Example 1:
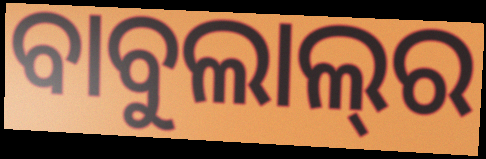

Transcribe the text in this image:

ବାବୁଲାଲ୍‍ର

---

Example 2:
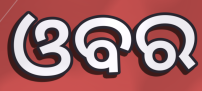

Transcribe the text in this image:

ଓବର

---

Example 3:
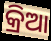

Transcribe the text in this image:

କ୍ରିଆ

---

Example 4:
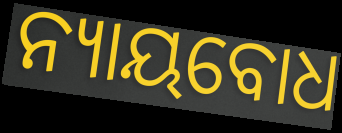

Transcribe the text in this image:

ନ୍ୟାୟବୋଧ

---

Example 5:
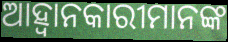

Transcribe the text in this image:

ଆହ୍ଵାନକାରୀମାନଙ୍କ